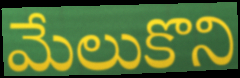
మేలుకొని